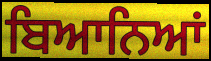
ਬਿਆਨਿਆਂ